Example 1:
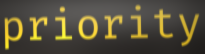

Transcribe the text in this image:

priority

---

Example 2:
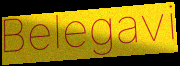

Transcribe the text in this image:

Belegavi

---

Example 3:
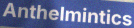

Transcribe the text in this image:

Anthelmintics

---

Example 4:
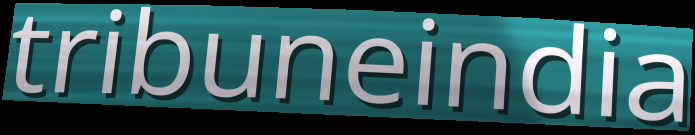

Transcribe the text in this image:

tribuneindia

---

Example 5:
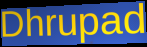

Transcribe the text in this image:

Dhrupad